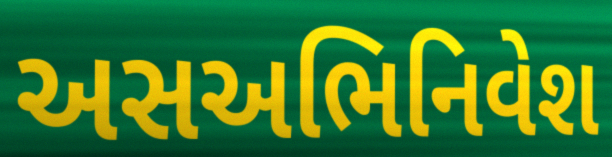
અસઅભિનિવેશ